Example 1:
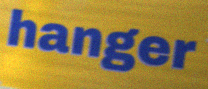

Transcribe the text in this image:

hanger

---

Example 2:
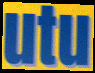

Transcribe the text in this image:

utu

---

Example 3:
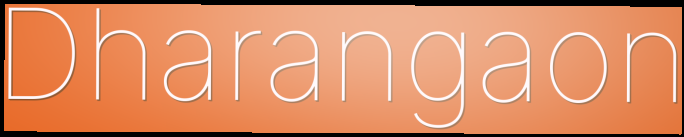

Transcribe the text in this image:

Dharangaon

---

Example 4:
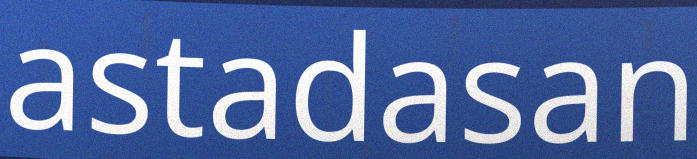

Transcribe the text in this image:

astadasan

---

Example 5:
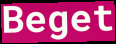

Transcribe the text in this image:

Beget